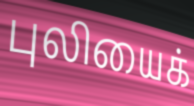
புலியைக்